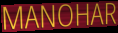
MANOHAR